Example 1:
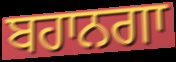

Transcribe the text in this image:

ਬਹਾਨਗਾ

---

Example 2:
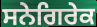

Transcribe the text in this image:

ਸਨੇਗਿਰੇਕ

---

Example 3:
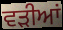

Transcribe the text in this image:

ਵੜੀਆਂ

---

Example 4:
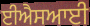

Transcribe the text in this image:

ਈਐਸਆਈ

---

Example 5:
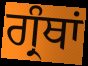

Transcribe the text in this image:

ਗ੍ਰੰਥਾਂ